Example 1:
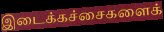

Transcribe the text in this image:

இடைக்கச்சைகளைக்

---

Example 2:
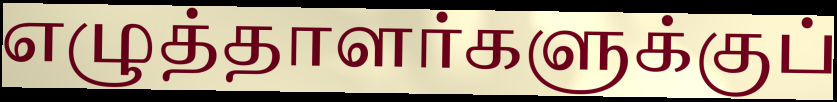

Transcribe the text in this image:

எழுத்தாளர்களுக்குப்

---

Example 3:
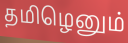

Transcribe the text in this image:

தமிழெனும்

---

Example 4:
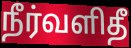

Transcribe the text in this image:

நீர்வளிதீ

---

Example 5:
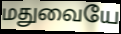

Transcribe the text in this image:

மதுவையே